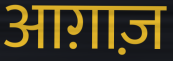
आग़ाज़